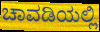
ಚಾವಡಿಯಲ್ಲಿ